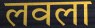
लवला